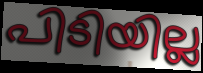
പിടിയില്ല